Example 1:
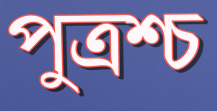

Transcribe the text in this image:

পুত্রশ্চ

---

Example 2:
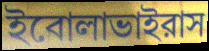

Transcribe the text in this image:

ইবোলাভাইরাস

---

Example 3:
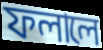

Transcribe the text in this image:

ফলালে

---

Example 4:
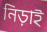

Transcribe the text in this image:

নিড়াই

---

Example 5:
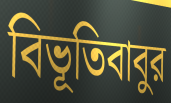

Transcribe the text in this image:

বিভূতিবাবুর